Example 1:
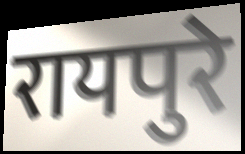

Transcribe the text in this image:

रायपुरे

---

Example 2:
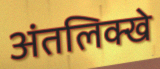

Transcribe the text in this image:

अंतलिक्खे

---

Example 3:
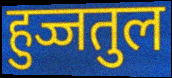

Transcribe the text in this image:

हुज्जतुल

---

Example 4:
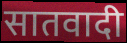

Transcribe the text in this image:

सातवादी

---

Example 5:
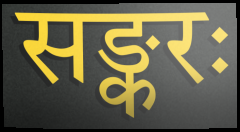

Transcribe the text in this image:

सङ्करः